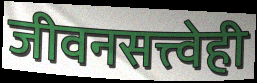
जीवनसत्त्वेही